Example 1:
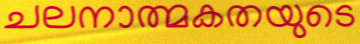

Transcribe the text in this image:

ചലനാത്മകതയുടെ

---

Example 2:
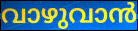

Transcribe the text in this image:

വാഴുവാൻ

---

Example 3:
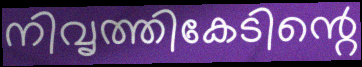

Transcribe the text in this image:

നിവൃത്തികേടിന്റെ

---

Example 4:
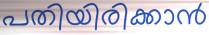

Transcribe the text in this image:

പതിയിരിക്കാൻ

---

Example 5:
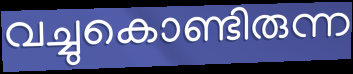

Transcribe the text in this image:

വച്ചുകൊണ്ടിരുന്ന